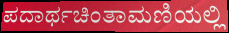
ಪದಾರ್ಥಚಿಂತಾಮಣಿಯಲ್ಲಿ